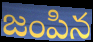
జంపిన